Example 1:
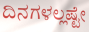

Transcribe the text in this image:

ದಿನಗಳಲ್ಲಷ್ಟೇ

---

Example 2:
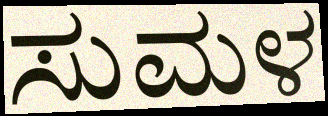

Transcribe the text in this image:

ಸುಮಳ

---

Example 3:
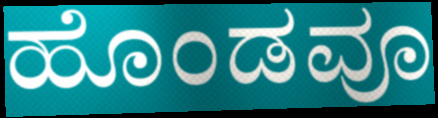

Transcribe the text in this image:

ಹೊಂಡವೂ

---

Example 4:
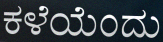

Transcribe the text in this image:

ಕಳೆಯೆಂದು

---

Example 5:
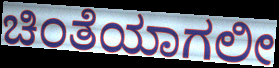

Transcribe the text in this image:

ಚಿಂತೆಯಾಗಲೀ